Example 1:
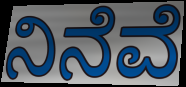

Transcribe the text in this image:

ನಿನೆವೆ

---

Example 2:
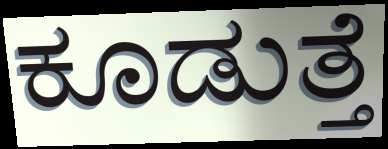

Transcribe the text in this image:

ಕೂಡುತ್ತೆ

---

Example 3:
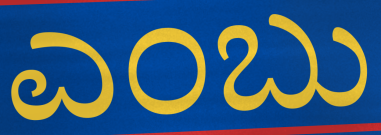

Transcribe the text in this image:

ಎಂಬು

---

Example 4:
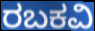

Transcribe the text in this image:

ರಬಕವಿ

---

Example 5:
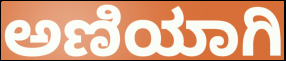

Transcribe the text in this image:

ಅಣಿಯಾಗಿ